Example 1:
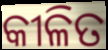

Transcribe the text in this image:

କୀଳିତ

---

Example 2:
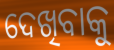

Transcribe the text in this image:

ଦେଖିବାକୁ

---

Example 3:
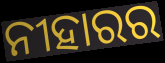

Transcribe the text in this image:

ନୀହାରର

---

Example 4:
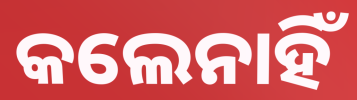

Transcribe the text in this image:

କଲେନାହିଁ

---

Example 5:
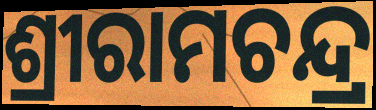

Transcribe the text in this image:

ଶ୍ରୀରାମଚନ୍ଦ୍ର